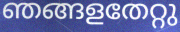
ഞങ്ങളതേറ്റു